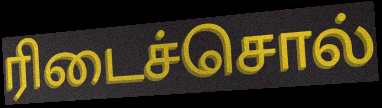
ரிடைச்சொல்